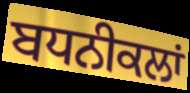
ਬਧਨੀਕਲਾਂ